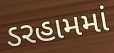
ડરહામમાં